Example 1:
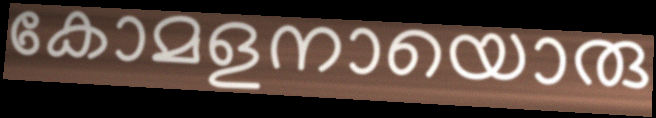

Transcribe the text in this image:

കോമളനായൊരു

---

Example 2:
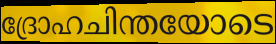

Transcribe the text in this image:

ദ്രോഹചിന്തയോടെ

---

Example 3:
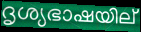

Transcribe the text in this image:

ദൃശ്യഭാഷയില്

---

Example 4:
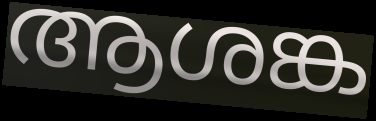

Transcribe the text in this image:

ആശങ്ക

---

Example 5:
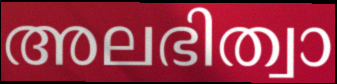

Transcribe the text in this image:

അലഭിത്വാ